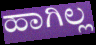
ಹಾಗಿಲ್ಲ